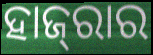
ହାଜ୍‌ରାର